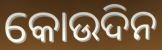
କୋଉଦିନ